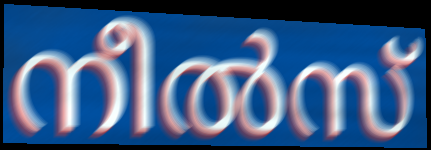
നീൽസ്